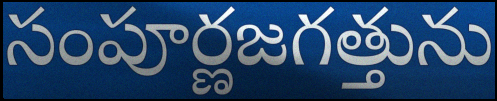
సంపూర్ణజగత్తును